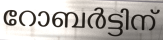
റോബർട്ടിന്